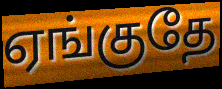
ஏங்குதே